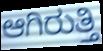
ಆಗಿರುತ್ತಿ